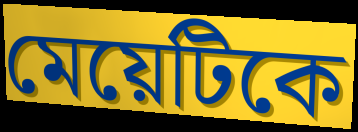
মেয়েটিকে